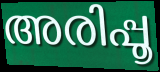
അരിപ്പൂ